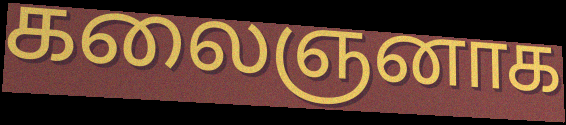
கலைஞனாக